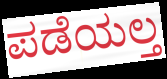
ಪಡೆಯಲ್ತ